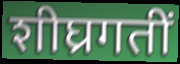
शीघ्रगतीं